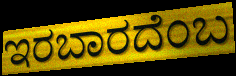
ಇರಬಾರದೆಂಬ